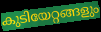
കുടിയേറ്റങ്ങളും